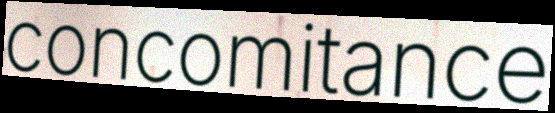
concomitance